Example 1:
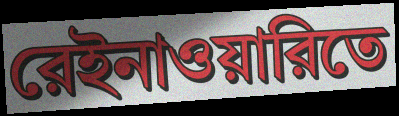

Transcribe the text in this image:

রেইনাওয়ারিতে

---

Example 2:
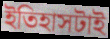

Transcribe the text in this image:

ইতিহাসটাই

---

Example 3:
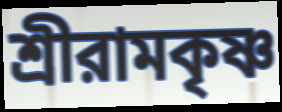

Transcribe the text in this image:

শ্রীরামকৃষ্ণ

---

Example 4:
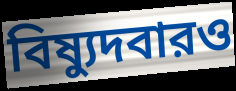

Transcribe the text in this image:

বিষ্যুদবারও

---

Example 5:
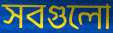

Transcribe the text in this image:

সবগুলো